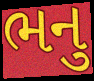
ભનુ